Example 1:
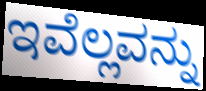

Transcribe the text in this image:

ಇವೆಲ್ಲವನ್ನು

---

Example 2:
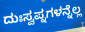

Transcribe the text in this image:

ದುಃಸ್ವಪ್ನಗಳನ್ನೆಲ್ಲ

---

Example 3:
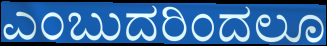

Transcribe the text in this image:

ಎಂಬುದರಿಂದಲೂ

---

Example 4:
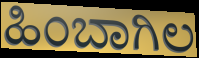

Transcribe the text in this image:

ಹಿಂಬಾಗಿಲ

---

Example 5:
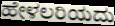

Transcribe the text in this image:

ಹೇಳಲರಿಯದು